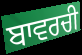
ਬਾਵਰਚੀ